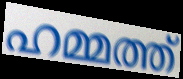
ഹമ്മത്ത്